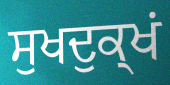
ਸੁਖਦੁਕ੍ਖਂ